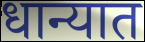
धान्यात